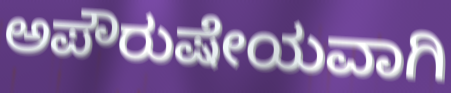
ಅಪೌರುಷೇಯವಾಗಿ